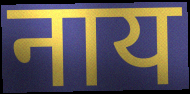
नाय